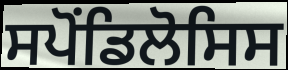
ਸਪੋਂਡਿਲੋਸਿਸ